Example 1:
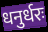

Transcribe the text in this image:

धनुर्धरः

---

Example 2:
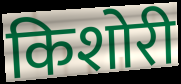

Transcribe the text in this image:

किशोरी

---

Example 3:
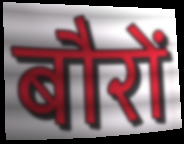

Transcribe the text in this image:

बौरों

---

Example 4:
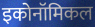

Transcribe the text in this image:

इकोनॉमिकल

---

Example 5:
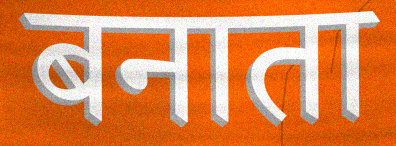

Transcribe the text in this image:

बनाता